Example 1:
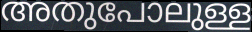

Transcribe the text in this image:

അതുപോലുള്ള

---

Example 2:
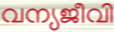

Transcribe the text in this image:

വന്യജീവി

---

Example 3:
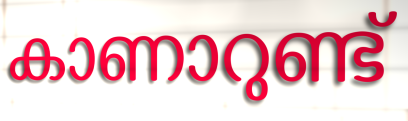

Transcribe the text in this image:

കാണാറുണ്ട്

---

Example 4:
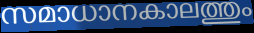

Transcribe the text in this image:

സമാധാനകാലത്തും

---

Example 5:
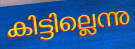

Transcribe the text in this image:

കിട്ടില്ലെന്നു